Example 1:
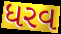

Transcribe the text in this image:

ધરવ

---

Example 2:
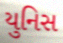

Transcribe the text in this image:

યુનિસ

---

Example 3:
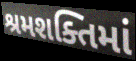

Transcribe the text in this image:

શ્રમશક્તિમાં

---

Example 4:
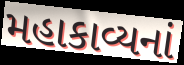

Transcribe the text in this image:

મહાકાવ્યનાં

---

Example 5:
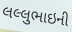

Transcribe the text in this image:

લલ્લુભાઇની